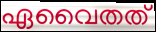
ഏവൈതത്